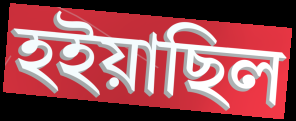
হইয়াছিল